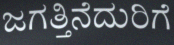
ಜಗತ್ತಿನೆದುರಿಗೆ